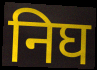
निघ